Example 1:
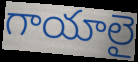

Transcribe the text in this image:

గాయాలై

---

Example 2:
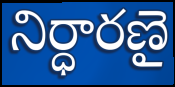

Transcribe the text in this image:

నిర్ధారణై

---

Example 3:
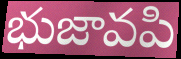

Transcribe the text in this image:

భుజావపి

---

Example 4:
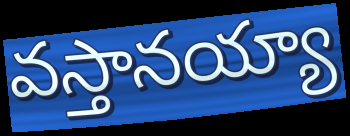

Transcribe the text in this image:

వస్తానయ్యా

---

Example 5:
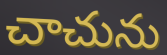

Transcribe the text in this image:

చాచును